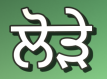
ਲੋੜੇ